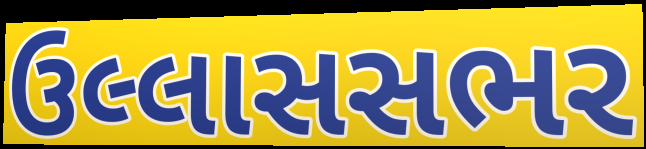
ઉલ્લાસસભર